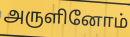
அருளினோம்